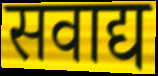
सवाद्य